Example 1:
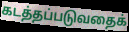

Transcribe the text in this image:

கடத்தப்படுவதைக்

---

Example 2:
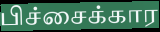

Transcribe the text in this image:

பிச்சைக்கார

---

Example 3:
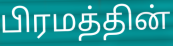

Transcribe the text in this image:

பிரமத்தின்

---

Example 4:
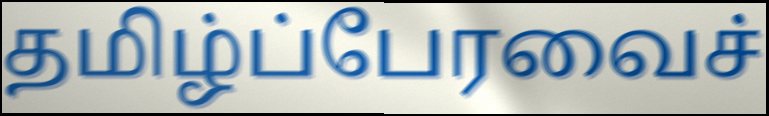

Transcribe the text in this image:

தமிழ்ப்பேரவைச்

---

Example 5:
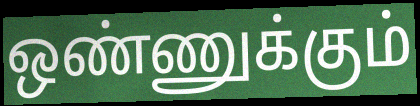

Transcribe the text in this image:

ஒண்ணுக்கும்